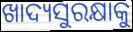
ଖାଦ୍ୟସୁରକ୍ଷାକୁ